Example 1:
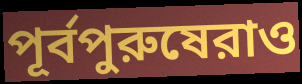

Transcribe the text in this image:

পূর্বপুরুষেরাও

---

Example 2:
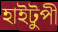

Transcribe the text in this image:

হাইটুপী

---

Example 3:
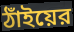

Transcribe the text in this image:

ঠাঁইয়ের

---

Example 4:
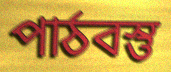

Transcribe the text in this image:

পাঠবস্তু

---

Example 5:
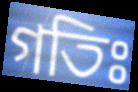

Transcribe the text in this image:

গতিঃ